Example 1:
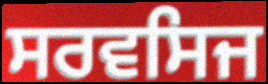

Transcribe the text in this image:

ਸਰਵਸਿਜ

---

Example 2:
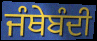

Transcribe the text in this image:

ਜੰਥੇਬੰਦੀ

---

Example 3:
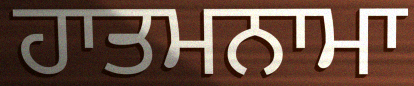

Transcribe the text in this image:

ਹਾਤਮਨਾਮਾ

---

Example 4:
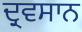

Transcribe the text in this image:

ਦ੍ਰਵਸਾਨ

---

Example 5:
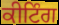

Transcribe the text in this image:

ਕੀਟਿੰਗ